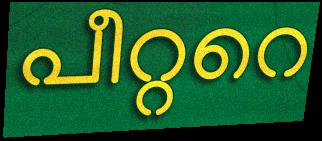
പീറ്ററെ